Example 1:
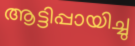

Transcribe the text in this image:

ആട്ടിപ്പായിച്ചു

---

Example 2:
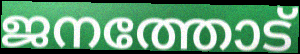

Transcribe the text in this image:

ജനത്തോട്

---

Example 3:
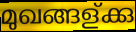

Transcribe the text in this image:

മുഖങ്ങള്ക്കു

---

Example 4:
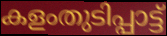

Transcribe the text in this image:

കളംതുടിപ്പാട്ട്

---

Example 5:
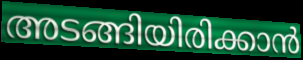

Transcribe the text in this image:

അടങ്ങിയിരിക്കാൻ